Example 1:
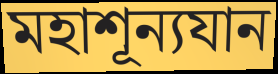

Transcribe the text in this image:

মহাশূন্যযান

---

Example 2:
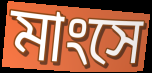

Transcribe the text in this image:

মাংসে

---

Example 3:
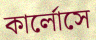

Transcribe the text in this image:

কার্লোসে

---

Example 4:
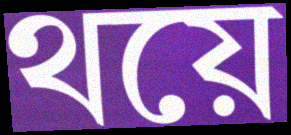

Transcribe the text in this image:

থয়ে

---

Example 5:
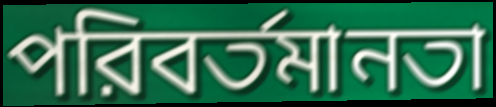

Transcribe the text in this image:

পরিবর্তমানতা